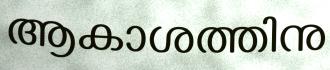
ആകാശത്തിനു